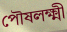
পৌষলক্ষ্মী